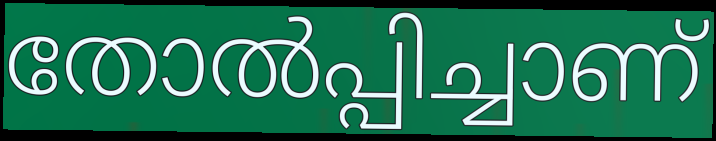
തോൽപ്പിച്ചാണ്